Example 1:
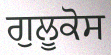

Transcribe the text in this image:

ਗੁਲੂਕੋਸ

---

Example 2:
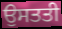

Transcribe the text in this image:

ਉਸਤਤੀ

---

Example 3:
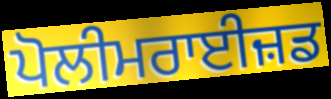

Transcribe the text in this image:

ਪੋਲੀਮਰਾਈਜ਼ਡ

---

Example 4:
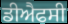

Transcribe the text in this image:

ਡੀਐਫਸੀ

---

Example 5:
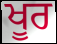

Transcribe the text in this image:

ਖੂਰ